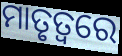
ମାତୃତ୍ୱରେ